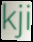
kji